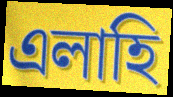
এলাহি